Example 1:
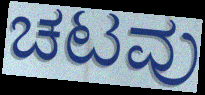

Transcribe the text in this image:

ಚಟವು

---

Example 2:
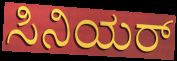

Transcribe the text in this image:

ಸಿನಿಯರ್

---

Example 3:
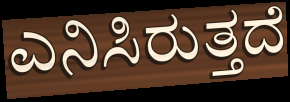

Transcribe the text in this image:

ಎನಿಸಿರುತ್ತದೆ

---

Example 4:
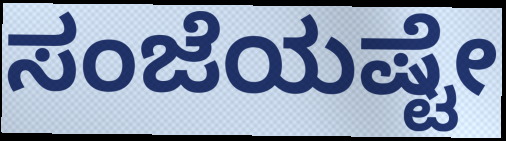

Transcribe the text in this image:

ಸಂಜೆಯಷ್ಟೇ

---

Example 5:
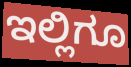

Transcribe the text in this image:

ಇಲ್ಲಿಗೂ